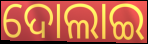
ଦୋଲାଇ